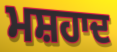
ਮਸ਼ਹਾਦ